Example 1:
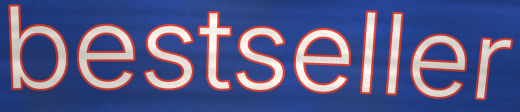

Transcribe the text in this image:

bestseller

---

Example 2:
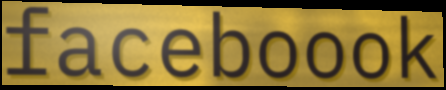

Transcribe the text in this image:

faceboook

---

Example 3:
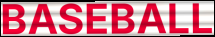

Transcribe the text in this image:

BASEBALL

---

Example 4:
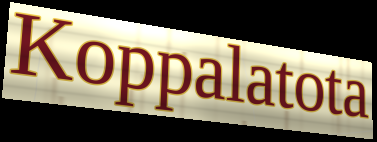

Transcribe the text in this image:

Koppalatota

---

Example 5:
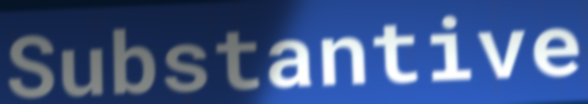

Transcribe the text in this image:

Substantive